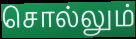
சொல்லும்